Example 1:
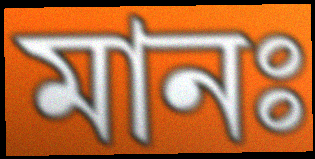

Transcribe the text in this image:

মানঃ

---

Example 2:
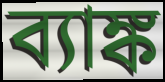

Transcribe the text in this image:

ব্যাঙ্ক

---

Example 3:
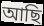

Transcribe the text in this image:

আছি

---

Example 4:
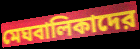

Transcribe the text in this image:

মেঘবালিকাদের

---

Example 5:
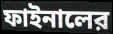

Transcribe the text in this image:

ফাইনালের